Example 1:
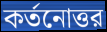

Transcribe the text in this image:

কর্তনোত্তর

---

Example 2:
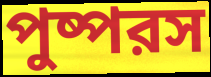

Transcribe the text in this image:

পুষ্পরস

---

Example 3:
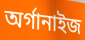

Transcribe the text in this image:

অর্গানাইজ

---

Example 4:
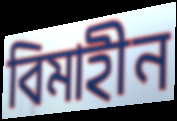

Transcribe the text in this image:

বিমাহীন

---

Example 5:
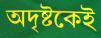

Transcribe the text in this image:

অদৃষ্টকেই